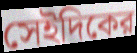
সেইদিকের